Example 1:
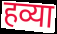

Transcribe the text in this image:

हव्या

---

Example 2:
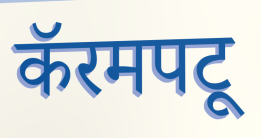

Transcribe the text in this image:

कॅरमपटू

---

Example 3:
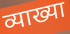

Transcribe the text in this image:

व्याख्या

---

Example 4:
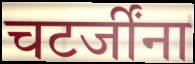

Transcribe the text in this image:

चटर्जींना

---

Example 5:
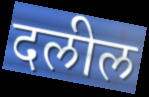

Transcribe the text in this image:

दलील